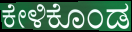
ಕೇಳಿಕೊಂಡ